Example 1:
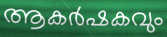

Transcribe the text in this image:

ആകർഷകവും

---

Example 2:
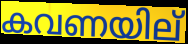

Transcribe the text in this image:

കവണയില്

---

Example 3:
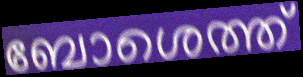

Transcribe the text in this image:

ബോശെത്ത്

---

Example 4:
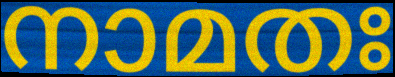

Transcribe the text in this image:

നാമതഃ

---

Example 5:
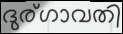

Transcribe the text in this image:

ദുര്ഗാവതി